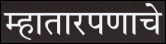
म्हातारपणाचे